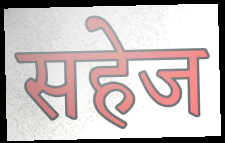
सहेज